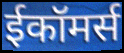
ईकॉमर्स